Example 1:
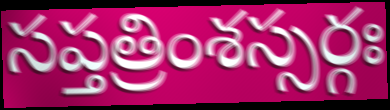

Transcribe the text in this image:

సప్తత్రింశస్సర్గః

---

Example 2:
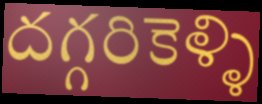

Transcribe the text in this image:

దగ్గరికెళ్ళి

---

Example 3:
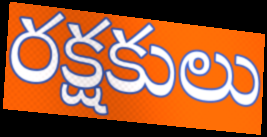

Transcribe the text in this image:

రక్షకులు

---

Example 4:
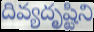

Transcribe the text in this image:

దివ్యదృష్టిని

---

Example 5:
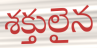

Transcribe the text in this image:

శక్తులైన